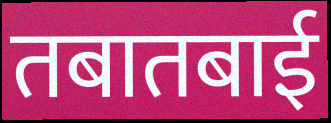
तबातबाई